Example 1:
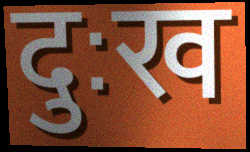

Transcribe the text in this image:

दुःख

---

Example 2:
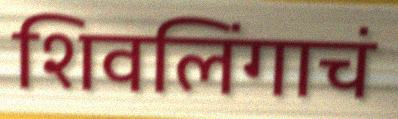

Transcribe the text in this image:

शिवलिंगाचं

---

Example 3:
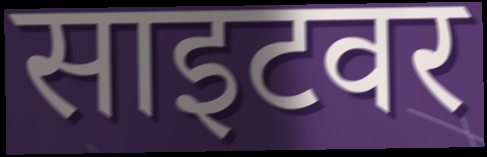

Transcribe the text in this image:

साइटवर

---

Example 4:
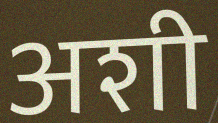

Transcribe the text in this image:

अशी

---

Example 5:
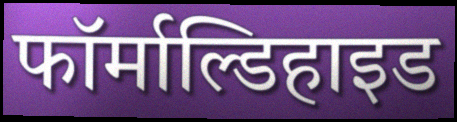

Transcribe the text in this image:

फॉर्माल्डिहाइड